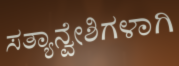
ಸತ್ಯಾನ್ವೇಶಿಗಳಾಗಿ